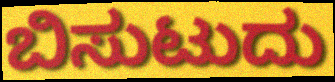
ಬಿಸುಟುದು